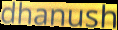
dhanush